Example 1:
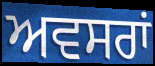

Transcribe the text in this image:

ਅਵਸਰਾਂ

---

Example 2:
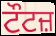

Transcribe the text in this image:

ਟੌਟਜ਼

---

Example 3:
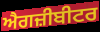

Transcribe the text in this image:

ਐਗਜ਼ੀਬੀਟਰ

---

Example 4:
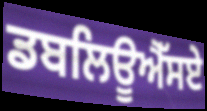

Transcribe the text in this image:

ਡਬਲਿਊਐੱਸਏ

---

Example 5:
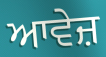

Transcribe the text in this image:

ਆਵੇਜ਼